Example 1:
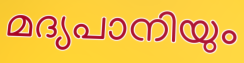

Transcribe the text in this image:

മദ്യപാനിയും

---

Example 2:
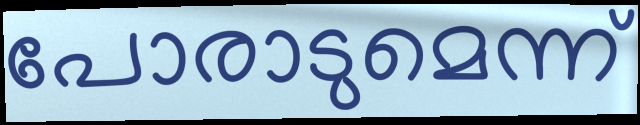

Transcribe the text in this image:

പോരാടുമെന്ന്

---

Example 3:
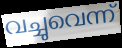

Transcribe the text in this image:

വച്ചുവെന്ന്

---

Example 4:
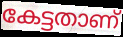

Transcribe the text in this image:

കേട്ടതാണ്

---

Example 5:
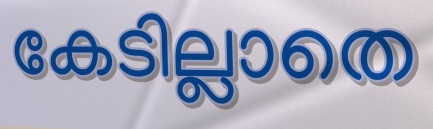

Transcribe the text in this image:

കേടില്ലാതെ